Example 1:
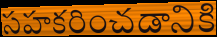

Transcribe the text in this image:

సహకరించడానికి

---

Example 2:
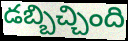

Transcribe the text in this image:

డబ్బిచ్చింది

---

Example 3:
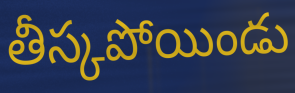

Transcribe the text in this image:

తీస్కపోయిండు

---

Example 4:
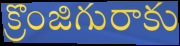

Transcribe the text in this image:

క్రొంజిగురాకు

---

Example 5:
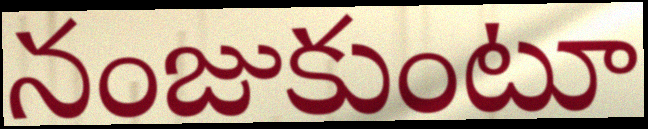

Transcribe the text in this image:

నంజుకుంటూ